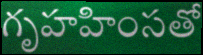
గృహహింసతో